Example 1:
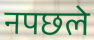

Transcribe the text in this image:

नपछले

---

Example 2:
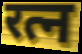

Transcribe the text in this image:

रत्न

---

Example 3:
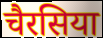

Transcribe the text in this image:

चैरसिया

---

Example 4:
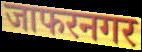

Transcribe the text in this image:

जाफरनगर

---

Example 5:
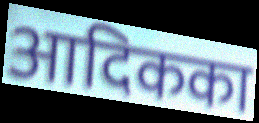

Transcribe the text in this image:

आदिकका